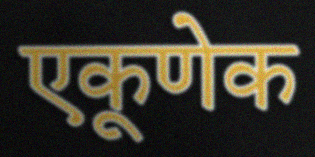
एकूणेक